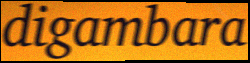
digambara